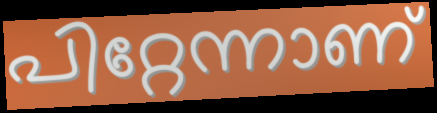
പിറ്റേന്നാണ്